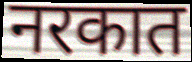
नरकात